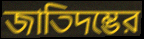
জাতিদম্ভের